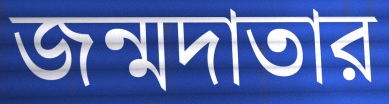
জন্মদাতার